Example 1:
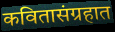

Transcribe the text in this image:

कवितासंग्रहात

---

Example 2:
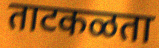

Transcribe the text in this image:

ताटकळता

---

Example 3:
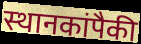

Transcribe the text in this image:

स्थानकांपैकी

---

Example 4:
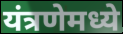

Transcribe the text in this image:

यंत्रणेमध्ये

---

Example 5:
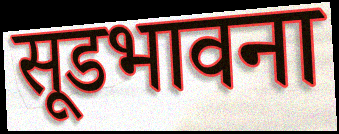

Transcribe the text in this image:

सूडभावना